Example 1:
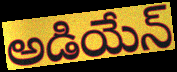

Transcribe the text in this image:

అడియేన్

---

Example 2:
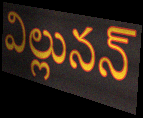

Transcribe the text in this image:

విల్లునన్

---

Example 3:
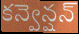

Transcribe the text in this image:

కన్వెన్షన్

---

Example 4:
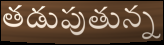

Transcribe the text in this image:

తడుపుతున్న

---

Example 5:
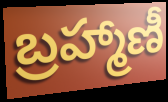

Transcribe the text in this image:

బ్రహ్మాణీ